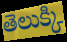
తెలుక్కి